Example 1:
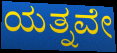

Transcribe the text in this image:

ಯತ್ನವೇ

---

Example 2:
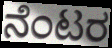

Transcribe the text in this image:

ನೆಂಟರ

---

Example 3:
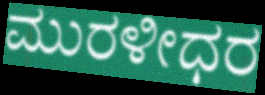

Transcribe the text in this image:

ಮುರಳೀಧರ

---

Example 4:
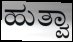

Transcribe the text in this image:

ಹುತ್ವಾ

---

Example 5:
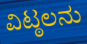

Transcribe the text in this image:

ವಿಟ್ಠಲನು